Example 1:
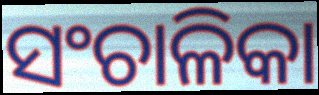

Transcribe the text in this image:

ସଂଚାଳିକା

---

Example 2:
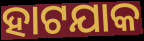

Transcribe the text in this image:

ହାଟଯାକ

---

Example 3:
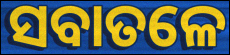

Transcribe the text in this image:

ସବାତଳେ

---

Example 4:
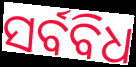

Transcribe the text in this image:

ସର୍ବବିଧ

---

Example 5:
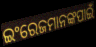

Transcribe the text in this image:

ଇଂରେଜମାନଙ୍କପାଇଁ